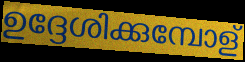
ഉദ്ദേശിക്കുമ്പോള്